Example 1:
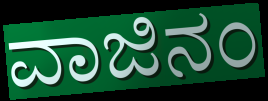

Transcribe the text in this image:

ವಾಜಿನಂ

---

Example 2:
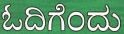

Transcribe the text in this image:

ಓದಿಗೆಂದು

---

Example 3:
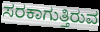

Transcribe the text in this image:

ಸರಕಾಗುತ್ತಿರುವ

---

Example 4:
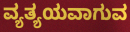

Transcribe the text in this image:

ವ್ಯತ್ಯಯವಾಗುವ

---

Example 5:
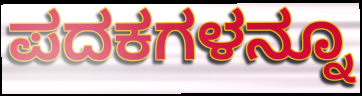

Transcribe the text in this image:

ಪದಕಗಳನ್ನೂ